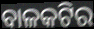
ବାଳକଟିର